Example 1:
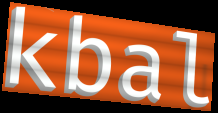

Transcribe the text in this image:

kbal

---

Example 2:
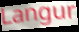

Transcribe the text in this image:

Langur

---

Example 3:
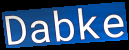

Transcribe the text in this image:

Dabke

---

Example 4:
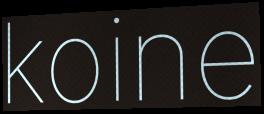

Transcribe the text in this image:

koine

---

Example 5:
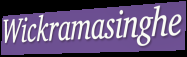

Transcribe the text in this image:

Wickramasinghe